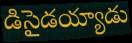
డిసైడయ్యాడు